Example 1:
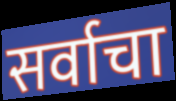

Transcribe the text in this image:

सर्वाचा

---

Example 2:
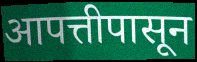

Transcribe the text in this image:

आपत्तीपासून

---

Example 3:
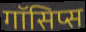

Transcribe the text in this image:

गॉसिप्स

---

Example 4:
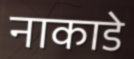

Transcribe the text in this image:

नाकाडे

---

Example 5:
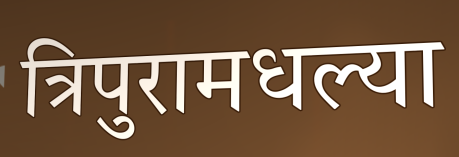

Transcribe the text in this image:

त्रिपुरामधल्या